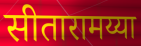
सीतारामय्या